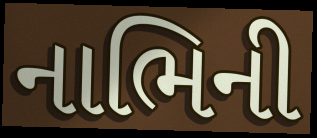
નાભિની